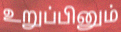
உறுப்பினும்